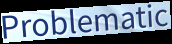
Problematic